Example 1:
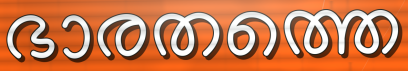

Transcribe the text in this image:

ഭാരതത്തെ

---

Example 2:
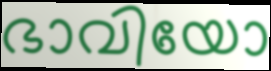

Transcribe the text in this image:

ഭാവിയോ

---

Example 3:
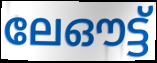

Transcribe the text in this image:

ലേഔട്ട്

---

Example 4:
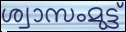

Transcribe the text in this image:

ശ്വാസംമുട്ട്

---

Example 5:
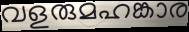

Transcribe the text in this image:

വളരുമഹങ്കാര